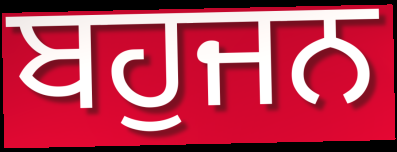
ਬਹੁਜਨ